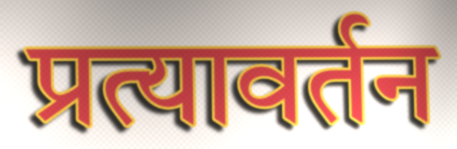
प्रत्‍यावर्तन